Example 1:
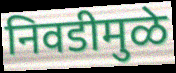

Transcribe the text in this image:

निवडीमुळे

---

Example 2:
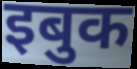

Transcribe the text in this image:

इबुक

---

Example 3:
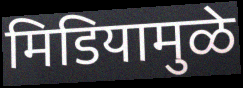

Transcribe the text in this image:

मिडियामुळे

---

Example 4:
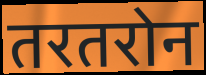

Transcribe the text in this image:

तरतरोन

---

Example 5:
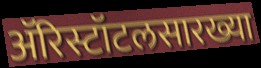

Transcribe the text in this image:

ॲरिस्टॉटलसारख्या